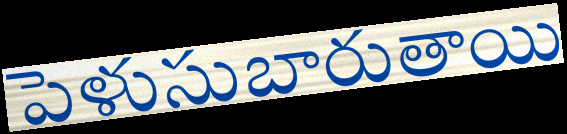
పెళుసుబారుతాయి